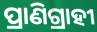
ପ୍ରାଣିଗ୍ରାହୀ